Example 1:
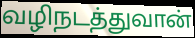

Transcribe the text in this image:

வழிநடத்துவான்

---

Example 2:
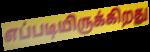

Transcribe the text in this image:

எப்படியிருக்கிறது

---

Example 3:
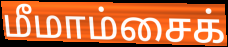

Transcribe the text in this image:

மீமாம்சைக்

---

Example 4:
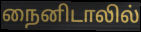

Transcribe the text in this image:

நைனிடாலில்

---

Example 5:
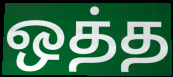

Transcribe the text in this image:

ஒத்த